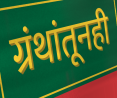
ग्रंथांतूनही